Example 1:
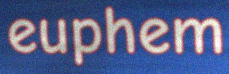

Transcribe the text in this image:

euphem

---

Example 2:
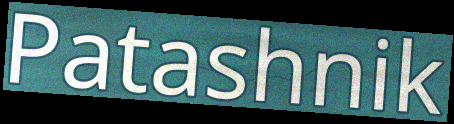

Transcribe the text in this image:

Patashnik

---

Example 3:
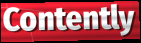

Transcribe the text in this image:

Contently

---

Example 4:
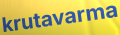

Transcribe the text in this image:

krutavarma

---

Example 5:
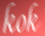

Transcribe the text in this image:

kok